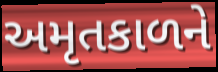
અમૃતકાળને